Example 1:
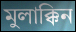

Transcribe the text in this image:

মুলাক্কিন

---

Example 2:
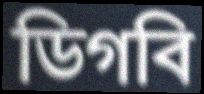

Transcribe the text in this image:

ডিগবি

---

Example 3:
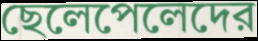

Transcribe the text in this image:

ছেলেপেলেদের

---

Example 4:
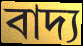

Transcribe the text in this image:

বাদ্য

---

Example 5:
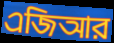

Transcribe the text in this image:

এজিআর